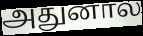
அதுனால